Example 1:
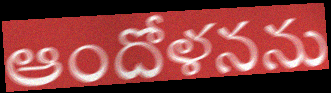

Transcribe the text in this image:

ఆందోళనను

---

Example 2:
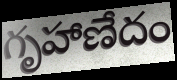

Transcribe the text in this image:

గృహాణేదం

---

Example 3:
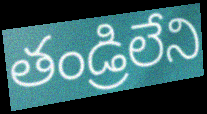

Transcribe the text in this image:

తండ్రిలేని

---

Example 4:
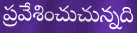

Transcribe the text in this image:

ప్రవేశించుచున్నది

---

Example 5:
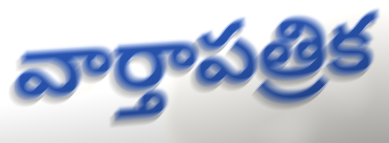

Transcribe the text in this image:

వార్తాపత్రిక